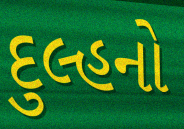
દુલ્હનો